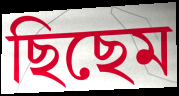
ছিছেম